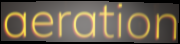
aeration